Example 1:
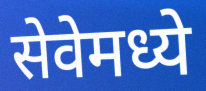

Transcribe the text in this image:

सेवेमध्ये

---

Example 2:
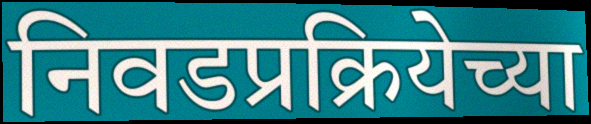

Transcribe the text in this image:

निवडप्रक्रियेच्या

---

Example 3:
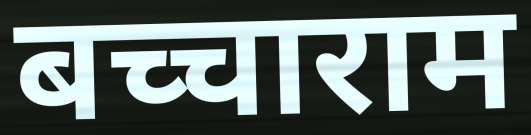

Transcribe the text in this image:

बच्चाराम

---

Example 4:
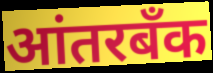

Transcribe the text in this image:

आंतरबँक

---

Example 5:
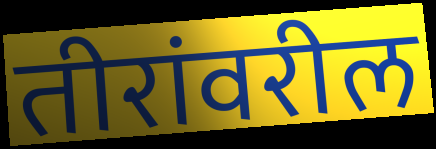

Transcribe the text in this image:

तीरांवरील